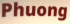
Phuong